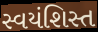
સ્વયંશિસ્ત